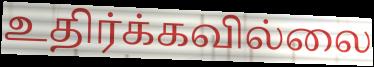
உதிர்க்கவில்லை